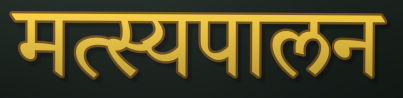
मत्स्यपालन